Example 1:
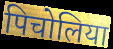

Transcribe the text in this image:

पिचोलिया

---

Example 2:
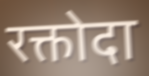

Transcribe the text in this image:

रक्तोदा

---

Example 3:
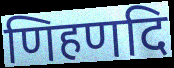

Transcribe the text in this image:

णिहणदि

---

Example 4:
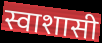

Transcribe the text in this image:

स्वाशासी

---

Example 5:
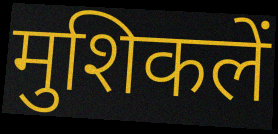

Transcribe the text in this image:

मुशिकलें